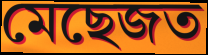
মেছেজত